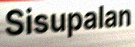
Sisupalan